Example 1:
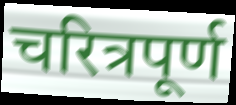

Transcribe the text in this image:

चरित्रपूर्ण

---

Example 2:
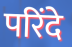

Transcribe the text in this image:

परिंदे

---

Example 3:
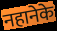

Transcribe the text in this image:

नहानेके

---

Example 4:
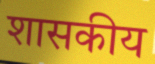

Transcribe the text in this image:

शासकीय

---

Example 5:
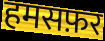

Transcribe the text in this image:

हमसफ़र